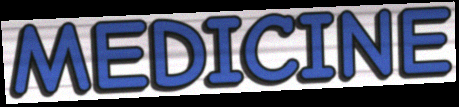
MEDICINE